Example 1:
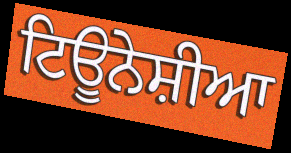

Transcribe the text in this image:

ਟਿਊਨੇਸ਼ੀਆ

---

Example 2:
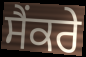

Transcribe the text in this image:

ਸੈਂਕਰੇ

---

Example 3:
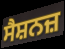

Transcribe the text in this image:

ਸੈਸ਼ਨਜ਼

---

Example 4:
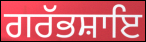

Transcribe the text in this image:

ਗਰੱਭਸ਼ਾਇ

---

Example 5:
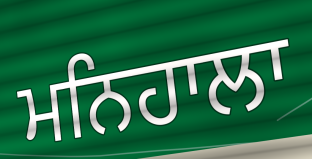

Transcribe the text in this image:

ਮਨਿਹਾਲਾ